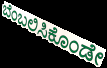
ಬೆಂಬಲಿಸಿಕೊಂಡೇ